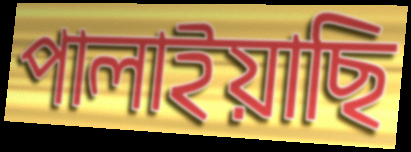
পালাইয়াছি